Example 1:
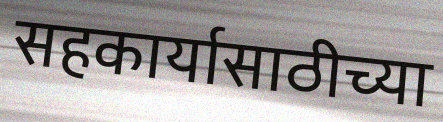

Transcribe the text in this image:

सहकार्यासाठीच्या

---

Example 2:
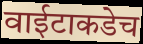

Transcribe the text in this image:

वाईटाकडेच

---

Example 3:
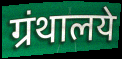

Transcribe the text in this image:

ग्रंथालये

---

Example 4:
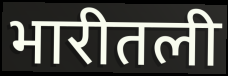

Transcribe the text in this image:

भारीतली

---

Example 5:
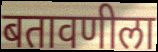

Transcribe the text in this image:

बतावणीला